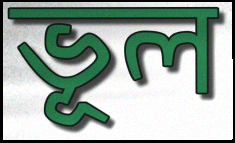
ভূল